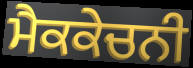
ਮੈਕਕੇਚਨੀ